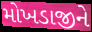
મોખડાજીને